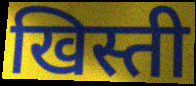
खिस्ती